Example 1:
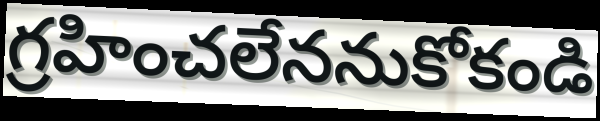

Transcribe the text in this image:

గ్రహించలేననుకోకండి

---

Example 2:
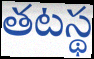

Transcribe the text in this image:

తటస్థ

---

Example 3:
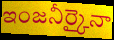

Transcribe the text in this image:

ఇంజనీర్కైనా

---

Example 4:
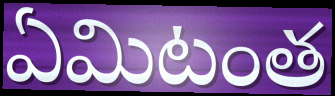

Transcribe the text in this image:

ఏమిటంత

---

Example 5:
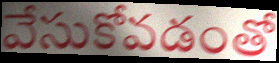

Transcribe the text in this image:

వేసుకోవడంతో